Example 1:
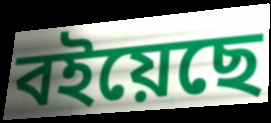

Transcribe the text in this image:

বইয়েছে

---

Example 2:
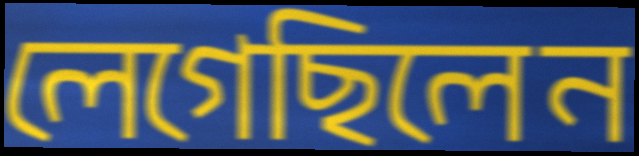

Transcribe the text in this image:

লেগেছিলেন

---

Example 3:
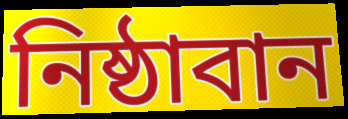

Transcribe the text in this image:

নিষ্ঠাবান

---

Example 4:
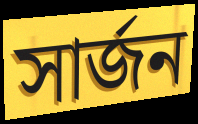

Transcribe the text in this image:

সার্জন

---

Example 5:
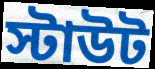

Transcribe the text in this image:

স্টাউট